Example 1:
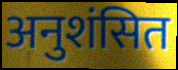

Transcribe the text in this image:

अनुशंसित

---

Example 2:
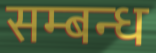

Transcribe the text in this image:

सम्बन्ध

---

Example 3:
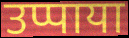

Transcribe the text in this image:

उप्पाया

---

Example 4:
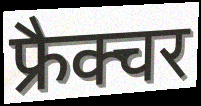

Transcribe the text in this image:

फ्रैक्चर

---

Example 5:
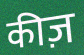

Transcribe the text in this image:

कीज़